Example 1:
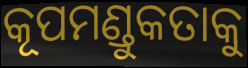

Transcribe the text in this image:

କୂପମଣ୍ଡୁକତାକୁ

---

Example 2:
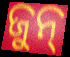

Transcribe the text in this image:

ଜୁନ୍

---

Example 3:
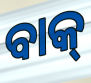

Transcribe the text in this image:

ବାକ୍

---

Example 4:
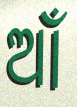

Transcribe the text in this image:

ଆଁ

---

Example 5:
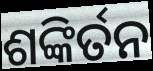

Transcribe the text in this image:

ଶଙ୍କିର୍ତନ